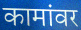
कामांवर